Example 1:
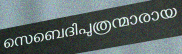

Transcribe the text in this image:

സെബെദിപുത്രന്മാരായ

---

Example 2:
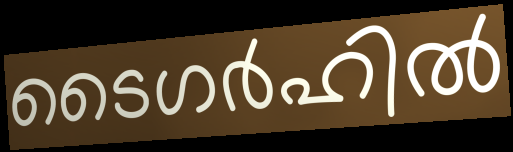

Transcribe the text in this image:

ടൈഗർഹിൽ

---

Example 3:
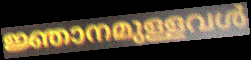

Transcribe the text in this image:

ജ്ഞാനമുള്ളവൾ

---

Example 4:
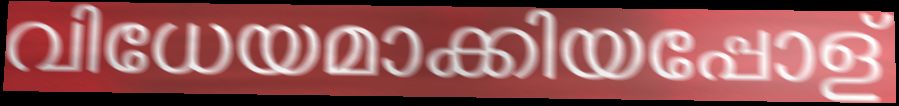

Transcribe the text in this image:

വിധേയമാക്കിയപ്പോള്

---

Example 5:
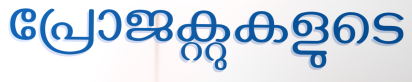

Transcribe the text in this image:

പ്രോജക്റ്റുകളുടെ